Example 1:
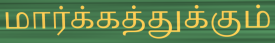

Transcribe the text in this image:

மார்க்கத்துக்கும்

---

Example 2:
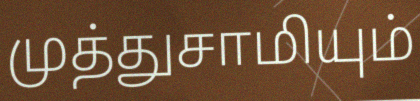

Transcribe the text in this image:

முத்துசாமியும்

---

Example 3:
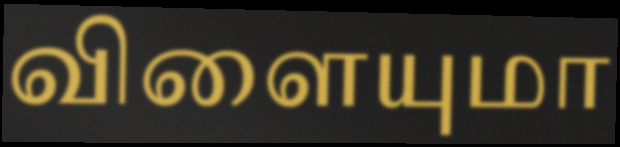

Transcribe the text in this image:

விளையுமா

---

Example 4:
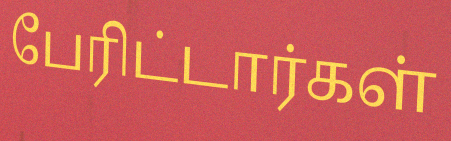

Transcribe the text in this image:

பேரிட்டார்கள்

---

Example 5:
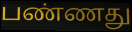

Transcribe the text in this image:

பண்ணது